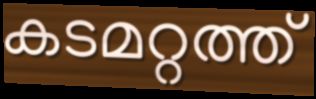
കടമറ്റത്ത്